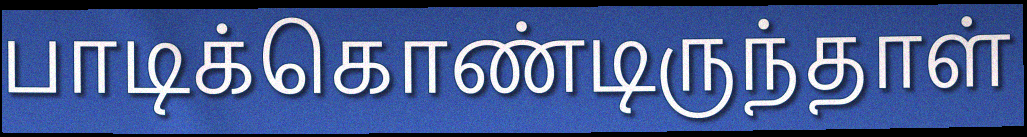
பாடிக்கொண்டிருந்தாள்